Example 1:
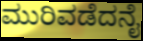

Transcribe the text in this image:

ಮುರಿವಡೆದನೈ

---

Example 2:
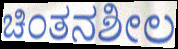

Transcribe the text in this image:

ಚಿಂತನಶೀಲ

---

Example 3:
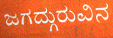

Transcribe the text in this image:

ಜಗದ್ಗುರುವಿನ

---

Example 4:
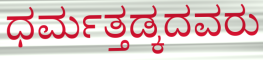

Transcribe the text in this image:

ಧರ್ಮತ್ತಡ್ಕದವರು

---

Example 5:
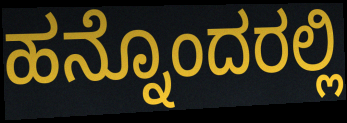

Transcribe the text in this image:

ಹನ್ನೊಂದರಲ್ಲಿ